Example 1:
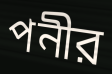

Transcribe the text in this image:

পনীর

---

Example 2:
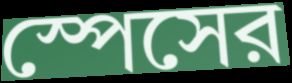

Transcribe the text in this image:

স্পেসের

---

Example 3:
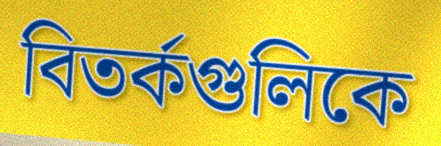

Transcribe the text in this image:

বিতর্কগুলিকে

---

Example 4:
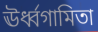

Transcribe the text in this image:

ঊর্ধ্বগামিতা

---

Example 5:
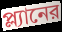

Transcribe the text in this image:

প্ল্যানের